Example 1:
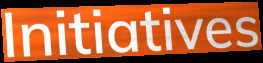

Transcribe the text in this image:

Initiatives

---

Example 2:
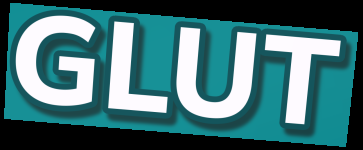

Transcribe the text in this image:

GLUT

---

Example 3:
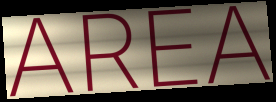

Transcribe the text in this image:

AREA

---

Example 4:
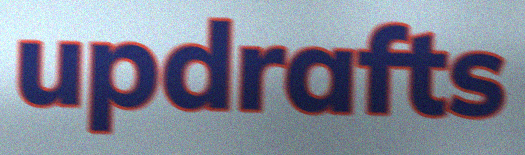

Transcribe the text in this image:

updrafts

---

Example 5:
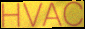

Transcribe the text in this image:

HVAC